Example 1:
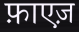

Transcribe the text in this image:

फ़ाएज़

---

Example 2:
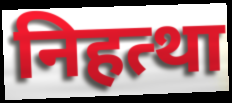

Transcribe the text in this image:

निहत्था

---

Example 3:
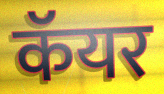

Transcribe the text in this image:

कॅयर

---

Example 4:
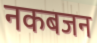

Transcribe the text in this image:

नकबजन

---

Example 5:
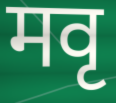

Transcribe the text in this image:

मवृ